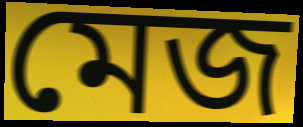
মেজ